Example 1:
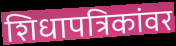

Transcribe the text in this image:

शिधापत्रिकांवर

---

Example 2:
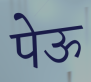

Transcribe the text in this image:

पेऊ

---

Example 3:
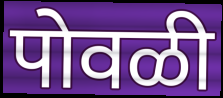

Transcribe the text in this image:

पोवळी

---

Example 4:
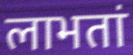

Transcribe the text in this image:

लाभतां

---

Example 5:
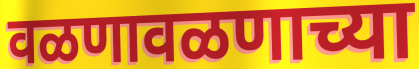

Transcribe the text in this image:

वळणावळणाच्या